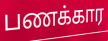
பணக்கார